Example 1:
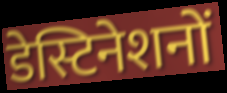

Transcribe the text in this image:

डेस्टिनेशनों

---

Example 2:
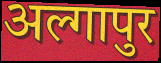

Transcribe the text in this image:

अल्गापुर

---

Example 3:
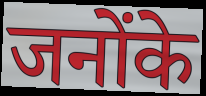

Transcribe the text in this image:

जनोंके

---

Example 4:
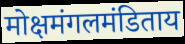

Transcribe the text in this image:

मोक्षमंगलमंडिताय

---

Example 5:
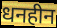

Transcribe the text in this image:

धनहीन